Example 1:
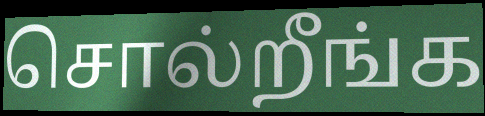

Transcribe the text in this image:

சொல்றீங்க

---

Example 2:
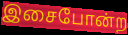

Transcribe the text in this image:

இசைபோன்ற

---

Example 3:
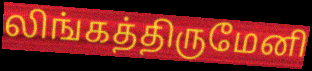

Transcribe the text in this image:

லிங்கத்திருமேனி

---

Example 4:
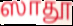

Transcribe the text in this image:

ஸாதூ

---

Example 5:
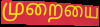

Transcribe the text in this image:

முறையை